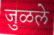
जुळले